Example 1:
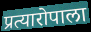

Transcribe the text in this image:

प्रत्यारोपाला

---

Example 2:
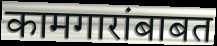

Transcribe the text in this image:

कामगारांबाबत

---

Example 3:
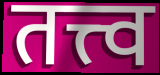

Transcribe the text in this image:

तत्त्व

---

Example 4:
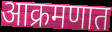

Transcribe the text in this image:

आक्रमणात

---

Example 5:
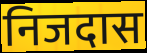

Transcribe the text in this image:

निजदास